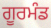
ਗੂਰਮੰਡ